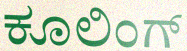
ಕೂಲಿಂಗ್